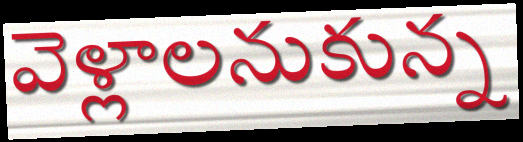
వెళ్లాలనుకున్న